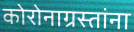
कोरोनाग्रस्तांना